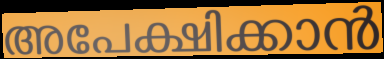
അപേക്ഷിക്കാൻ